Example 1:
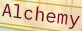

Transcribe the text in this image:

Alchemy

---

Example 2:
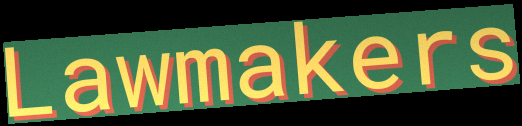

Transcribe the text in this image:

Lawmakers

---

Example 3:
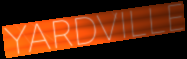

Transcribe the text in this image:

YARDVILLE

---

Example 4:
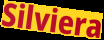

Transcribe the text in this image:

Silviera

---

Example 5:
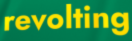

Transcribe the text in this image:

revolting